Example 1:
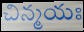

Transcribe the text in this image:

చిన్మయః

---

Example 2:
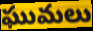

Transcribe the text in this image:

ఘుమలు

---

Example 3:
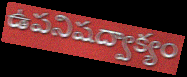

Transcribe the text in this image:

ఉపనిషద్వాక్యం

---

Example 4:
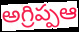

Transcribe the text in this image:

అగ్రిప్పఆ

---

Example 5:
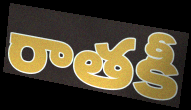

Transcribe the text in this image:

రాతకీ